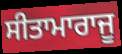
ਸੀਤਾਮਾਰਾਜੂ